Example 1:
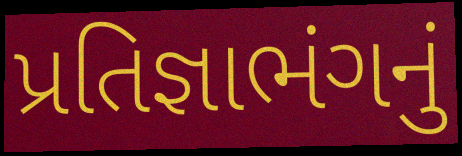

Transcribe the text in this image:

પ્રતિજ્ઞાભંગનું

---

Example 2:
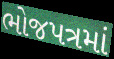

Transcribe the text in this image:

ભોજપત્રમાં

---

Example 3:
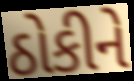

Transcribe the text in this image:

ઠોકીને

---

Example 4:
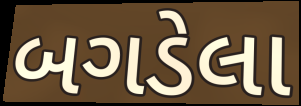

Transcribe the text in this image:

બગડેલા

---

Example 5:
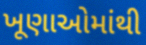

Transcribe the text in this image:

ખૂણાઓમાંથી